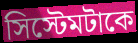
সিস্টেমটাকে